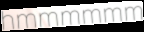
hmmmmmm